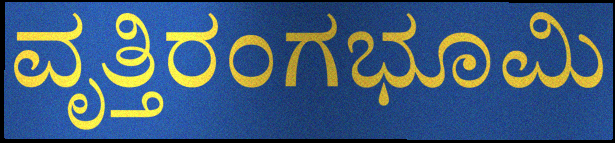
ವೃತ್ತಿರಂಗಭೂಮಿ